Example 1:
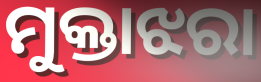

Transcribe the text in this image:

ମୁକ୍ତାଝରା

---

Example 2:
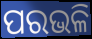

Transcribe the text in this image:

ପରଭଳି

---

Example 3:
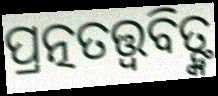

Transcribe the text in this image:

ପ୍ରତ୍ନତତ୍ତ୍ୱବିତ୍ଙ୍କ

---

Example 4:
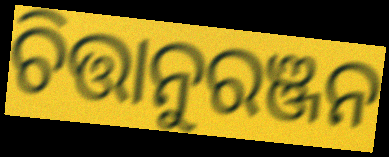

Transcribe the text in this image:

ଚିତ୍ତାନୁରଞ୍ଜନ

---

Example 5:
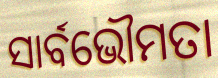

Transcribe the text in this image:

ସାର୍ବଭୌମତା